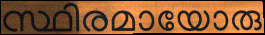
സ്ഥിരമായോരു